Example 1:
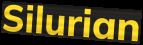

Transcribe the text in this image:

Silurian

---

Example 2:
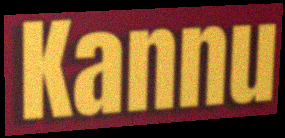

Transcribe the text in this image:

Kannu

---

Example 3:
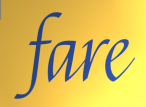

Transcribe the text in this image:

fare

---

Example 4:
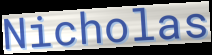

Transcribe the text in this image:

Nicholas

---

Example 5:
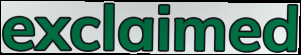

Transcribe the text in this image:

exclaimed